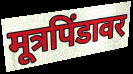
मूत्रपिंडावर